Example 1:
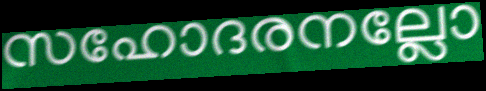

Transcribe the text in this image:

സഹോദരനല്ലോ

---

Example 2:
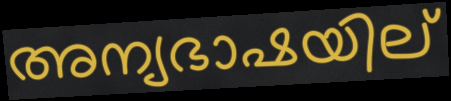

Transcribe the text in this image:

അന്യഭാഷയില്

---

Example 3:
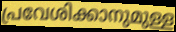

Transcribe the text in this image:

പ്രവേശിക്കാനുമുള്ള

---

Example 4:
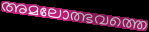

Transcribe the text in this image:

അമലോത്ഭവത്തെ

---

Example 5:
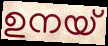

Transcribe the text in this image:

ഉനയ്